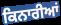
ਕਿਨਾਰੀਆਂ